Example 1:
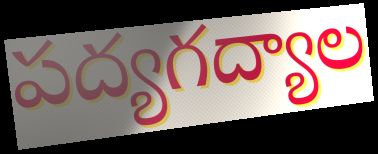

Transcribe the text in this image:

పద్యగద్యాల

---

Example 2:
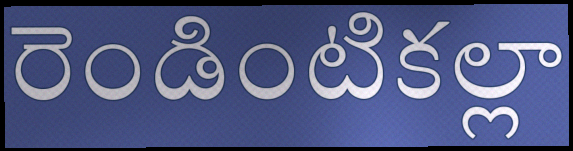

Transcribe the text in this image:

రెండింటికల్లా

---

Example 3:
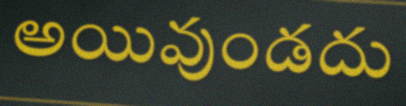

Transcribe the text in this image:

అయివుండదు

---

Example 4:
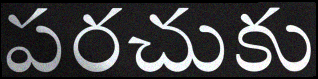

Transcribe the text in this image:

పరచుకు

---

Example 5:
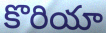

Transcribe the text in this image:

కొరియా